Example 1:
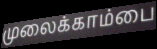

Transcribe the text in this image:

முலைக்காம்பை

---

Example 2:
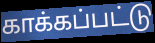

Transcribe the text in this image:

காக்கப்பட்டு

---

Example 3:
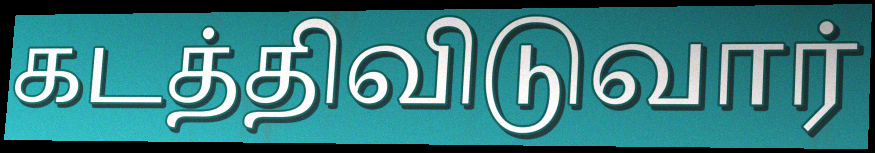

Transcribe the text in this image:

கடத்திவிடுவார்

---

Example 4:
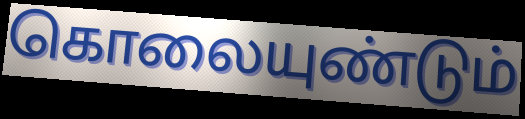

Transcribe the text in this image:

கொலையுண்டும்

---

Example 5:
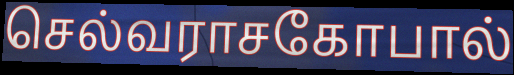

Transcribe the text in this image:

செல்வராசகோபால்